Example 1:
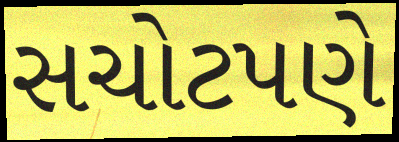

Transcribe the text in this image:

સચોટપણે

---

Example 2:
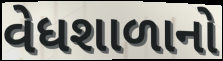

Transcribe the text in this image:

વેધશાળાનો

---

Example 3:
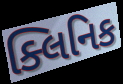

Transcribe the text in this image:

ક્લિનિક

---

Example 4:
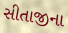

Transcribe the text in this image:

સીતાજીના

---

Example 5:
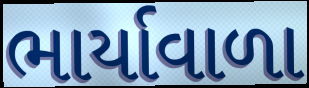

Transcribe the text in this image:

ભાર્યાવાળા